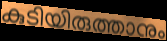
കുടിയിരുത്താനും